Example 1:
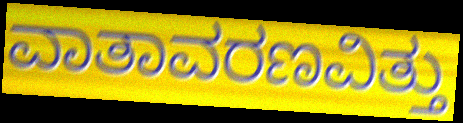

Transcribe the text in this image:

ವಾತಾವರಣವಿತ್ತು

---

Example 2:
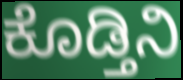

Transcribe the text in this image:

ಕೊಡ್ತಿನಿ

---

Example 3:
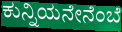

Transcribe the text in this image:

ಕುನ್ನಿಯನೇನೆಂಬೆ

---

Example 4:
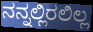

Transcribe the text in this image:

ನನ್ನಲ್ಲಿರಲಿಲ್ಲ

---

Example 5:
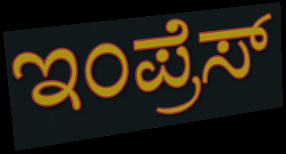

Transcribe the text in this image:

ಇಂಪ್ರೆಸ್